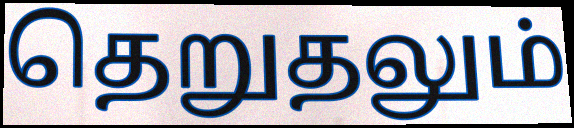
தெறுதலும்